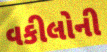
વકીલોની